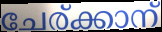
ചേര്ക്കാന്